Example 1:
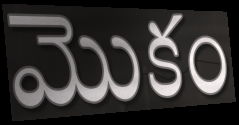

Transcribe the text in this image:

మొకం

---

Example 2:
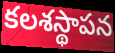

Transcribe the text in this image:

కలశస్థాపన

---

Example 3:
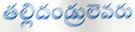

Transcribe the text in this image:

తల్లిదండ్రులెవరు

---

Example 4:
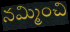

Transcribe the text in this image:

నమ్మించి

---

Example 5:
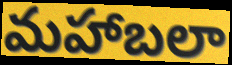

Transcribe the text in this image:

మహాబలా